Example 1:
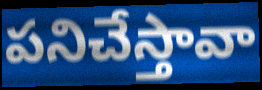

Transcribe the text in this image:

పనిచేస్తావా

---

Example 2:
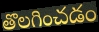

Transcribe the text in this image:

తొలగించడం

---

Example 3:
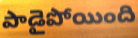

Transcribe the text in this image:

పాడైపోయింది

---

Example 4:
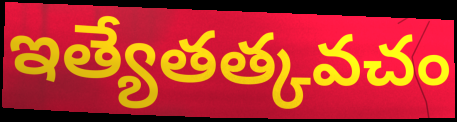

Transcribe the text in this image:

ఇత్యేతత్కవచం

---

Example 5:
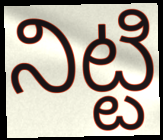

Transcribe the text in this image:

నిట్టి